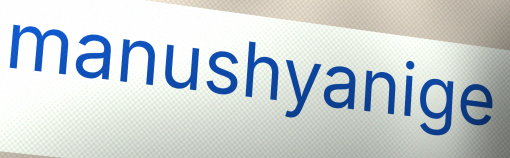
manushyanige